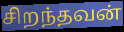
சிறந்தவன்